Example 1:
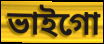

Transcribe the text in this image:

ভাইগো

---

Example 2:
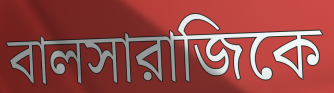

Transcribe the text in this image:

বালসারাজিকে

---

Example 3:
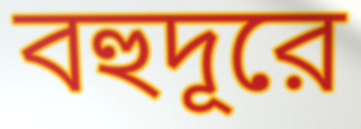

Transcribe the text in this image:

বহুদূরে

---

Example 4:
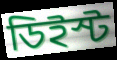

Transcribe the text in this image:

ডিইস্ট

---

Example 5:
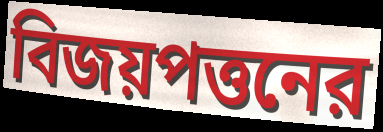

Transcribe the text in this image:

বিজয়পত্তনের